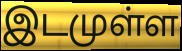
இடமுள்ள